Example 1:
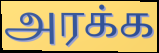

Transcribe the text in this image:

அரக்க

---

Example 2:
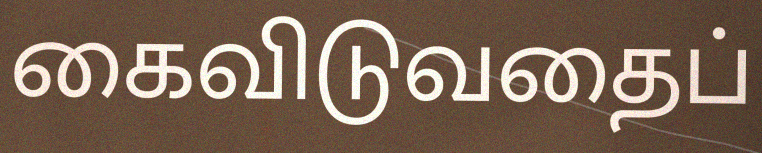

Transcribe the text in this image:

கைவிடுவதைப்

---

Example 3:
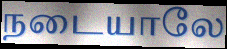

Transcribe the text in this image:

நடையாலே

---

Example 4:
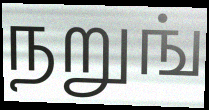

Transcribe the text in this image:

நறுங்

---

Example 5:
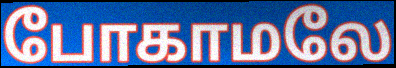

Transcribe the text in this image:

போகாமலே